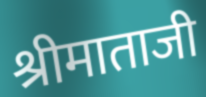
श्रीमाताजी